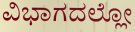
ವಿಭಾಗದಲ್ಲೋ